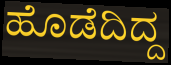
ಹೊಡೆದಿದ್ದ